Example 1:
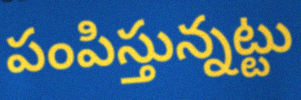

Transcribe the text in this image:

పంపిస్తున్నట్టు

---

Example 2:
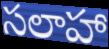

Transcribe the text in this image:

సలాహా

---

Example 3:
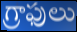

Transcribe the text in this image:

గ్రాఫులు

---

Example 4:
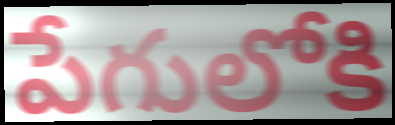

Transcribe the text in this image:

పేగులోకి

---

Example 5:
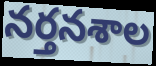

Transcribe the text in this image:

నర్తనశాల